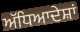
ਅੱਧਿਆਦੇਸ਼ਾਂ